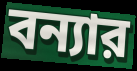
বন্যার